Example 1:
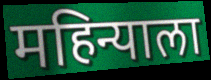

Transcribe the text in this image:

महिन्याला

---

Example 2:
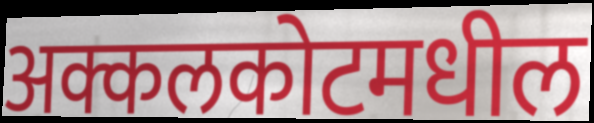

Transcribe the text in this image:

अक्कलकोटमधील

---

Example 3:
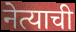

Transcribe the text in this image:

नेत्याची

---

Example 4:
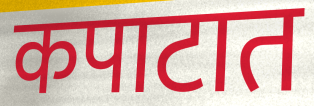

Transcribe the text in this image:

कपाटात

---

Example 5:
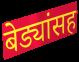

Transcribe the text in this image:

बेड्यांसह